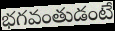
భగవంతుడంటే